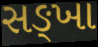
સઙ્ખા